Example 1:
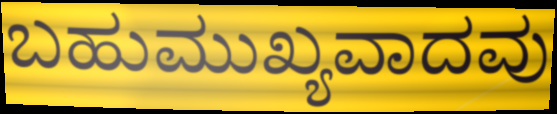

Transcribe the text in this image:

ಬಹುಮುಖ್ಯವಾದವು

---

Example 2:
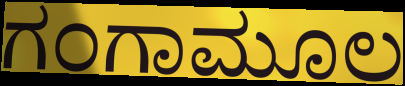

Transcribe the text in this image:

ಗಂಗಾಮೂಲ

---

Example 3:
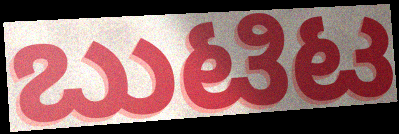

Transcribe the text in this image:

ಬುಟಿಟ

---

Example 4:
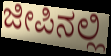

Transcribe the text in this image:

ಜೀಪಿನಲ್ಲಿ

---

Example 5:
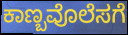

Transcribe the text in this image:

ಕಾಣ್ಬವೊಲೆಸಗೆ